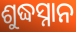
ଶୁଦ୍ଧସ୍ନାନ